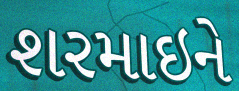
શરમાઇને